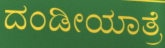
ದಂಡೀಯಾತ್ರೆ